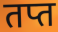
तप्त